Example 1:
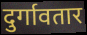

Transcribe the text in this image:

दुर्गावतार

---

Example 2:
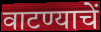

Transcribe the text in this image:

वाटण्याचें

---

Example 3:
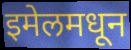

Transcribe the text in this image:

इमेलमधून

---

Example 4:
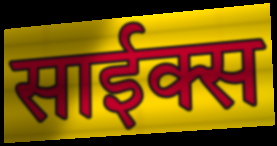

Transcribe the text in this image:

साईक्स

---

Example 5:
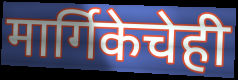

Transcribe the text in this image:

मार्गिकेचेही